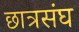
छात्रसंघ